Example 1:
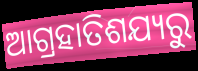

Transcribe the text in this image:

ଆଗ୍ରହାତିଶଯ୍ୟରୁ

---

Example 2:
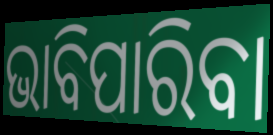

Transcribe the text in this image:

ଭାବିପାରିବା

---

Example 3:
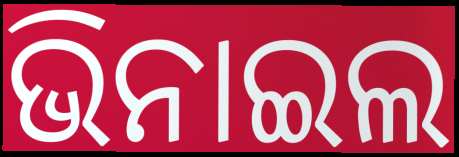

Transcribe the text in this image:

ଭିନାଇଲ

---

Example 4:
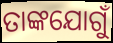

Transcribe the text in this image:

ତାଙ୍କଯୋଗୁଁ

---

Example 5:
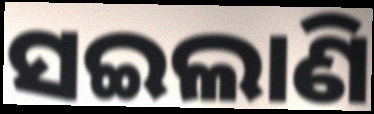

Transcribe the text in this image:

ସଇଲାଣି